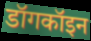
डॉगकॉइन